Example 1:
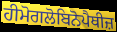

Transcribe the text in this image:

ਹੀਮੋਗਲੋਬਿਨੋਪੈਥੀਜ਼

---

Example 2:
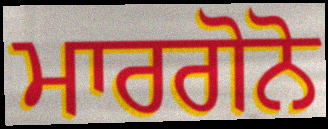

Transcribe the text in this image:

ਮਾਰਗੋਨੋ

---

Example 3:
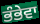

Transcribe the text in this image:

ਭੰਭੇਵਾ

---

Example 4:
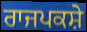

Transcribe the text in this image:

ਰਾਜਪਕਸ਼ੇ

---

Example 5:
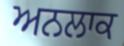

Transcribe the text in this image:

ਅਨਲਾਕ